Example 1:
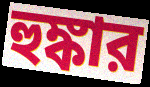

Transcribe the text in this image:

হুঙ্কার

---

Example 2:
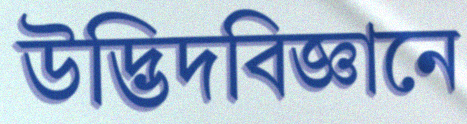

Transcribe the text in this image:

উদ্ভিদবিজ্ঞানে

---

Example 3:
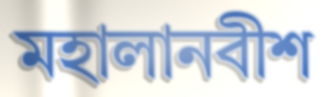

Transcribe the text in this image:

মহালানবীশ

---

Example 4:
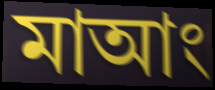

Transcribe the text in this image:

মাআং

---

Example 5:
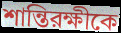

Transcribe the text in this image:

শান্তিরক্ষীকে